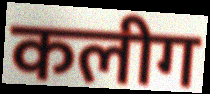
कलीग